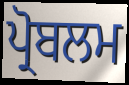
ਪ੍ਰੋਬਲਮ